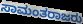
ಸಾಮಂತರಾಜರು